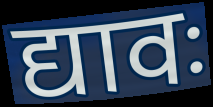
द्यावः